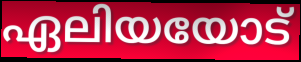
ഏലിയയോട്